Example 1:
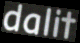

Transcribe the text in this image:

dalit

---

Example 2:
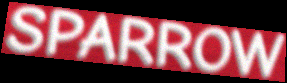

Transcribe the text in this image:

SPARROW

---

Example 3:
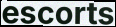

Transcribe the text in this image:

escorts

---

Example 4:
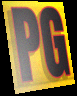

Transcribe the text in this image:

PG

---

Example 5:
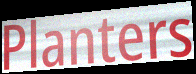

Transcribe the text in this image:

Planters